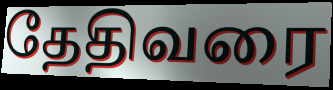
தேதிவரை